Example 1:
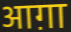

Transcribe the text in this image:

आग़ा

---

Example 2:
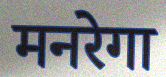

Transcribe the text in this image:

मनरेगा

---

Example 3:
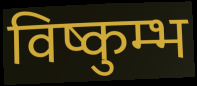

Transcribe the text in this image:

विष्कुम्भ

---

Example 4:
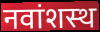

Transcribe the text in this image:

नवांशस्थ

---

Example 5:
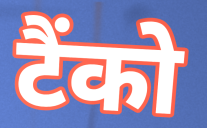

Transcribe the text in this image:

टैंको